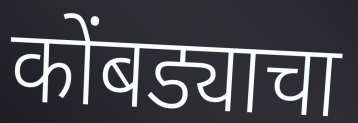
कोंबड्याचा